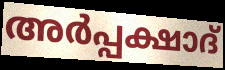
അർപ്പക്ഷാദ്